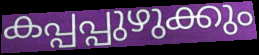
കപ്പപ്പുഴുക്കും